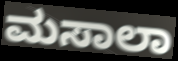
ಮಸಾಲಾ